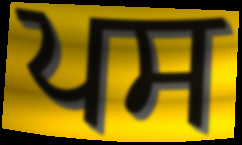
ਪਸ